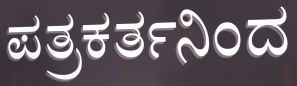
ಪತ್ರಕರ್ತನಿಂದ